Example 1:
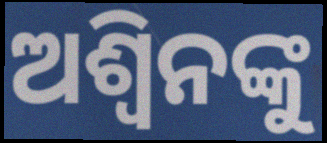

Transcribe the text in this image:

ଅଶ୍ବିନଙ୍କୁ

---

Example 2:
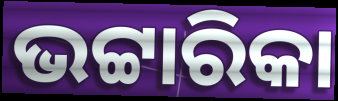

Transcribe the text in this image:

ଭଟ୍ଟାରିକା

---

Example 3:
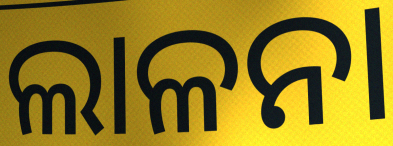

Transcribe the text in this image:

ଲାଳନା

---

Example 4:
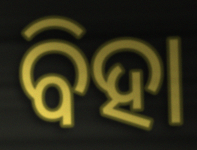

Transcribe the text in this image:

ବିହା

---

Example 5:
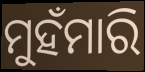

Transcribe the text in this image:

ମୁହଁମାରି